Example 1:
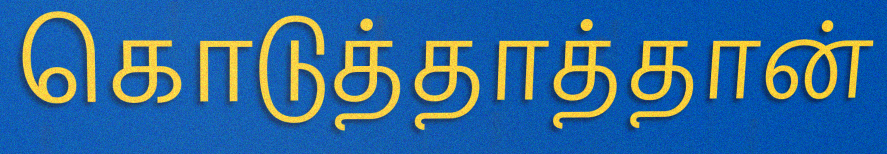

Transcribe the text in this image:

கொடுத்தாத்தான்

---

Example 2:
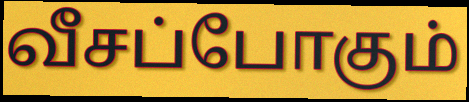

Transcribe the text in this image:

வீசப்போகும்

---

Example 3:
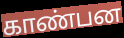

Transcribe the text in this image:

காண்பன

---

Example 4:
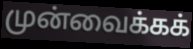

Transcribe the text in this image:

முன்வைக்கக்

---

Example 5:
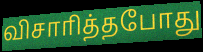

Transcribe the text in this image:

விசாரித்தபோது